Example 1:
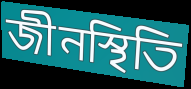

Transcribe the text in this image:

জীনস্থিতি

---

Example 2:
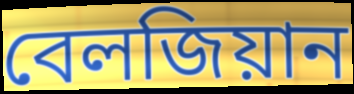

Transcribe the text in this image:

বেলজিয়ান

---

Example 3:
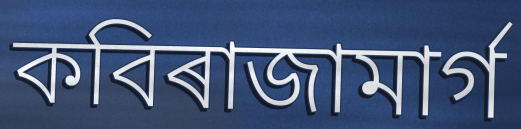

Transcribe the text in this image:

কবিৰাজামাৰ্গ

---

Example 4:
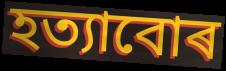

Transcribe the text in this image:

হত্যাবোৰ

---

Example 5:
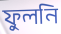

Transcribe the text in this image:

ফুলনি